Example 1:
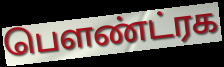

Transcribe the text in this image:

பௌண்ட்ரக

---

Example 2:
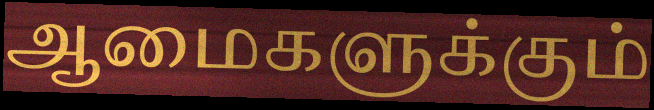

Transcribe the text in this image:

ஆமைகளுக்கும்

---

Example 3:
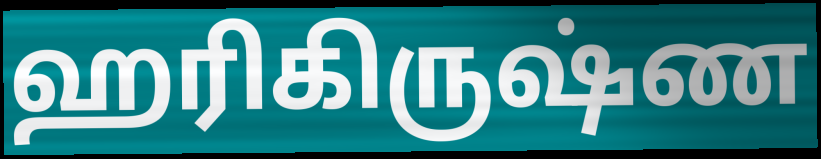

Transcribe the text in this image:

ஹரிகிருஷ்ண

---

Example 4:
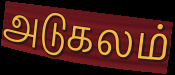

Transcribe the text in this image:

அடுகலம்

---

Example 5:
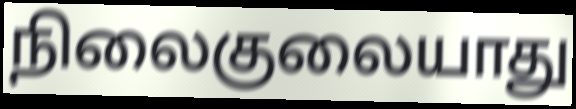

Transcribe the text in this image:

நிலைகுலையாது